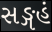
સઙ્ગહં